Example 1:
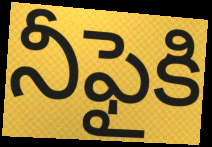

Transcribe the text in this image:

నీఫైకి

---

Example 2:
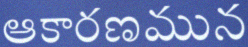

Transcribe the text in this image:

ఆకారణమున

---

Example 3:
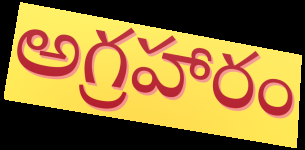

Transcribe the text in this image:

అగ్రహారం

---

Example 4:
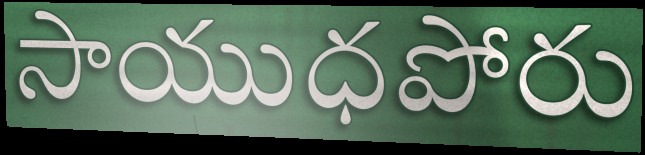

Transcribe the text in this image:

సాయుధపోరు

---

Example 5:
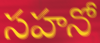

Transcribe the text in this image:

సహనో